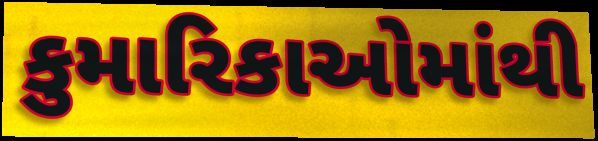
કુમારિકાઓમાંથી